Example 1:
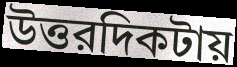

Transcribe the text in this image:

উত্তরদিকটায়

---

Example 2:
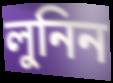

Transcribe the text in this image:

লুনিন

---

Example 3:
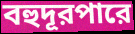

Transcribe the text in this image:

বহুদূরপারে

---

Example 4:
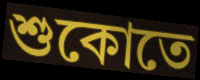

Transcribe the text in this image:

শুকোতে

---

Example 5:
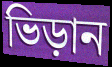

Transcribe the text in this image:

ভিড়ান